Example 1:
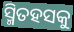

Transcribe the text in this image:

ସ୍ମିତହସକୁ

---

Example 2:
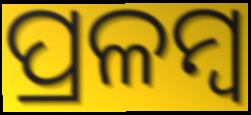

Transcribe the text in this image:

ପ୍ରଳମ୍ବ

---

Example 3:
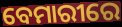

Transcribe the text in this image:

ବେମାରୀରେ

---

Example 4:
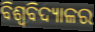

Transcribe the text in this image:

ବିଶ୍ୱବିଦ୍ୟାଳର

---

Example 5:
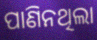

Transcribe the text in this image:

ପାଣିନଥିଲା